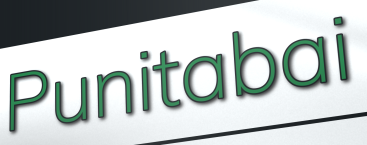
Punitabai